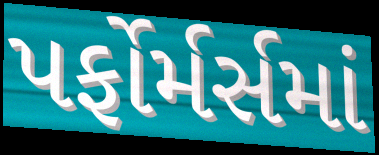
પર્ફોર્મર્સમાં